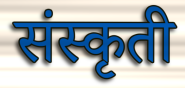
संस्कृती